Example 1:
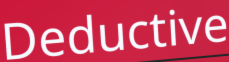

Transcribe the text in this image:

Deductive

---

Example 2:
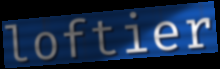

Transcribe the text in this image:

loftier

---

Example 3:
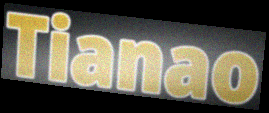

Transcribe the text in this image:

Tianao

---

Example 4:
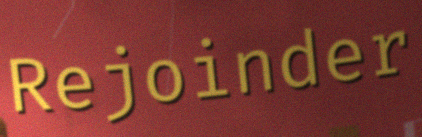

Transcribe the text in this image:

Rejoinder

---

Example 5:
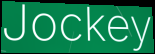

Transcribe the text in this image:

Jockey